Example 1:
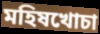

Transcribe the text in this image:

মহিষখোচা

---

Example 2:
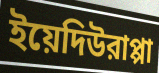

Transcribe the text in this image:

ইয়েদিউরাপ্পা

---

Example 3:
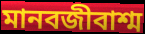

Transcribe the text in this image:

মানবজীবাশ্ম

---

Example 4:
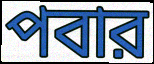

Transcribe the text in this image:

পবার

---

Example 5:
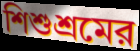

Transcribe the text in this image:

শিশুশ্রমের